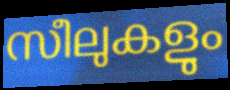
സീലുകളും